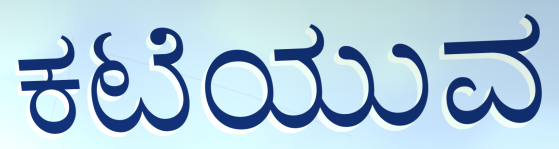
ಕಟೆಯುವ